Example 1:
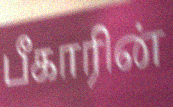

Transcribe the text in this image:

பீகாரின்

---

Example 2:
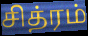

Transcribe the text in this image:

சித்ரம்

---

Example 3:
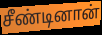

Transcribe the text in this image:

சீண்டினான்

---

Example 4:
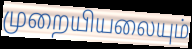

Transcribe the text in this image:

முறையியலையும்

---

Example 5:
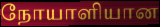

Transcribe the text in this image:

நோயாளியான